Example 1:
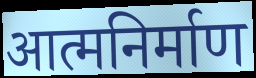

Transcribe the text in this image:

आत्मनिर्माण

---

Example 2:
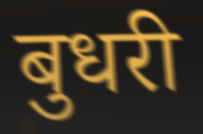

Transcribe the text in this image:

बुधरी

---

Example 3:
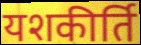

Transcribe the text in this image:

यशकीर्ति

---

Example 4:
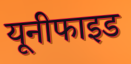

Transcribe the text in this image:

यूनीफाइड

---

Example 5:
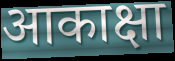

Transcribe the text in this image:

आकाक्षा